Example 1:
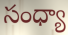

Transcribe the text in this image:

సంధ్యా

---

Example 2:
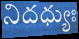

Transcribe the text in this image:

నిదధ్యుః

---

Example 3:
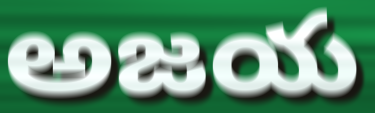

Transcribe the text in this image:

అజయ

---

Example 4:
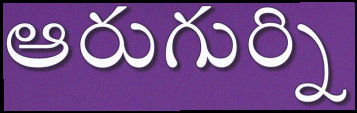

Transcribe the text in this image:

ఆరుగుర్ని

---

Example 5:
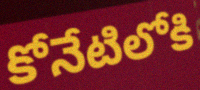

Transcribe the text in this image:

కోనేటిలోకి